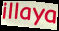
illaya